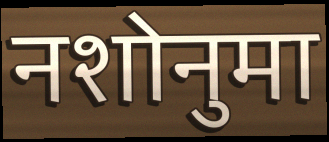
नशोनुमा